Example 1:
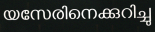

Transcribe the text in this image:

യസേരിനെക്കുറിച്ചു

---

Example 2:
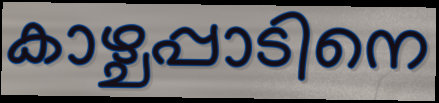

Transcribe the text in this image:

കാഴ്ചപ്പാടിനെ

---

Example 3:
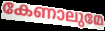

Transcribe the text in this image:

കേണാലുമേ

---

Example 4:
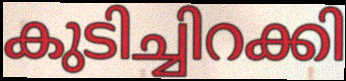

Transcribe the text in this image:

കുടിച്ചിറക്കി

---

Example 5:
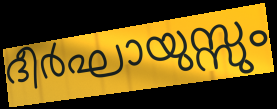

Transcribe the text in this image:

ദീർഘായുസ്സും